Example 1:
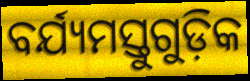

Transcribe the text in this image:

ବର୍ଯ୍ୟମସ୍ତୁଗୁଡ଼ିକ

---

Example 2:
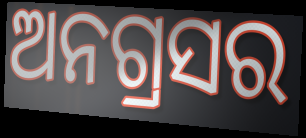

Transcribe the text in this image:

ଅନଗ୍ରସର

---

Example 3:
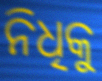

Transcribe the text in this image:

ନିଧିକୁ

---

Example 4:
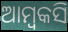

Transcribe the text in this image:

ଆମ୍ବକସି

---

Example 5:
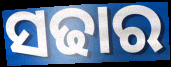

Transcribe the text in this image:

ସଢାର